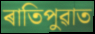
ৰাতিপুৱাত